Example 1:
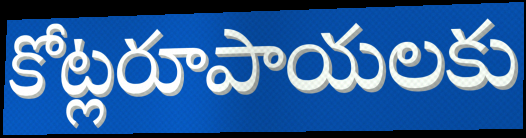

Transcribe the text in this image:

కోట్లరూపాయలకు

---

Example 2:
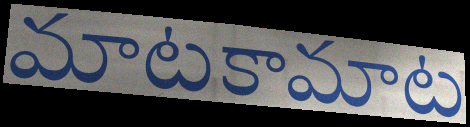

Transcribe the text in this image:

మాటకామాట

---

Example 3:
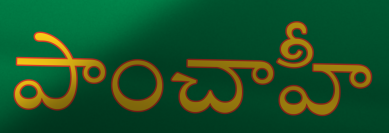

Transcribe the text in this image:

పాంచాహీ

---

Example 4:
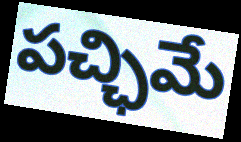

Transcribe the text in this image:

పచ్ఛిమే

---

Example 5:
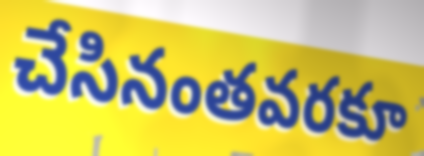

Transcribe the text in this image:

చేసినంతవరకూ